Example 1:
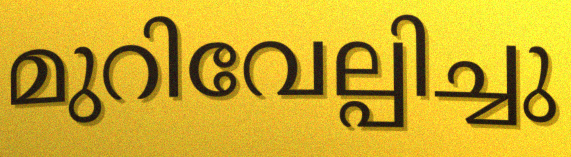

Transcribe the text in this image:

മുറിവേല്പിച്ചു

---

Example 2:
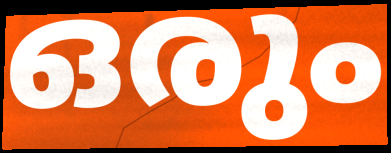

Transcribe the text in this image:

ഒരും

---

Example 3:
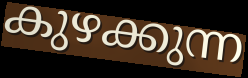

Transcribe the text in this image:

കുഴക്കുന്ന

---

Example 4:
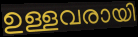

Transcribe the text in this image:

ഉള്ളവരായി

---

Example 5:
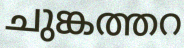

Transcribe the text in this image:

ചുങ്കത്തറ